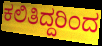
ಕಲಿತಿದ್ದರಿಂದ